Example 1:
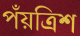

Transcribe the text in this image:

পঁয়ত্রিশ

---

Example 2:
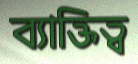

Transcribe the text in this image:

ব্যাক্তিত্ব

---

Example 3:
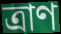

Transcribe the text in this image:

ত্রাণ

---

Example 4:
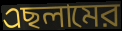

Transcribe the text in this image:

এছলামের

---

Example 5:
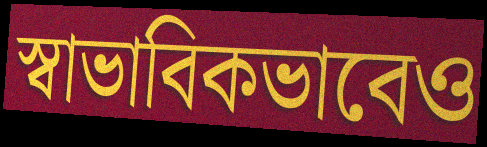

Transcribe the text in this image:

স্বাভাবিকভাবেও